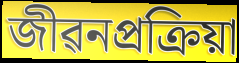
জীৱনপ্ৰক্ৰিয়া